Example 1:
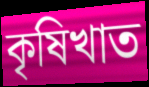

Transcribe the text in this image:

কৃষিখাত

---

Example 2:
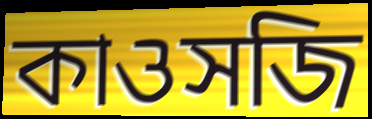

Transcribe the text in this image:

কাওসজি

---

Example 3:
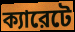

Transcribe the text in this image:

ক্যারেটে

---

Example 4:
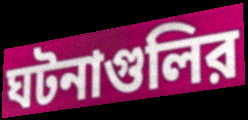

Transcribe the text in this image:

ঘটনাগুলির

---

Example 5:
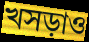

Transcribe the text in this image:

খসড়াও